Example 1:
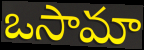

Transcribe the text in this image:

ఒసామా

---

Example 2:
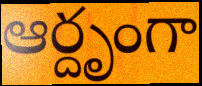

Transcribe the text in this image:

ఆర్దృంగా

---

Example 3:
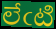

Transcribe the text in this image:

లేఁటి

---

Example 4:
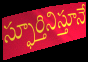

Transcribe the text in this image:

స్ఫూర్తినిస్తూనే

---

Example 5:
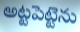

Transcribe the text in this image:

అట్టపెట్టెను